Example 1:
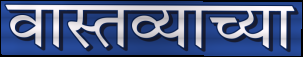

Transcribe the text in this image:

वास्तव्याच्या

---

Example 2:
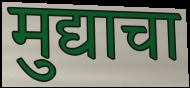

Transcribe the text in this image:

मुद्याचा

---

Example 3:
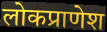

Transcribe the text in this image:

लोकप्राणेश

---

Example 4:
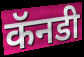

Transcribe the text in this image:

कॅनडी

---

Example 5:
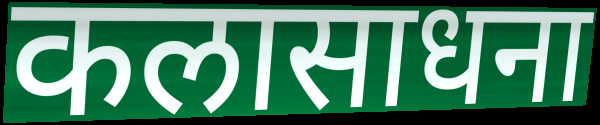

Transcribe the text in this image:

कलासाधना